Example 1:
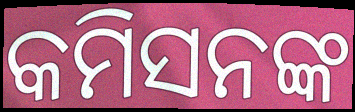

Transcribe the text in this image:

କମିସନଙ୍କ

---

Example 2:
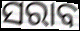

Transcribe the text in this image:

ସରାବ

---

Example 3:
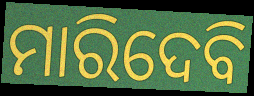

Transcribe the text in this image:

ମାରିଦେବି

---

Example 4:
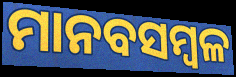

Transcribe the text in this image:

ମାନବସମ୍ବଳ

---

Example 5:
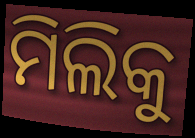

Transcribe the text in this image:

ମିଲିକୁ